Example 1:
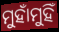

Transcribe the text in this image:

ମୁହାଁମୁହିଁ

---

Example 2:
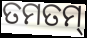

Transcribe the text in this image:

ତମତମ୍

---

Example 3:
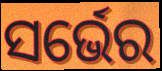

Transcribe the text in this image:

ସର୍ଭେର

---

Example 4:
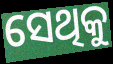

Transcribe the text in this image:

ସେଥିକୁ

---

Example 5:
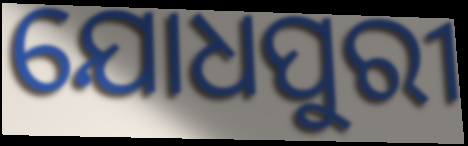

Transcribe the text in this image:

ଯୋଧପୁରୀ